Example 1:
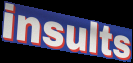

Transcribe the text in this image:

insults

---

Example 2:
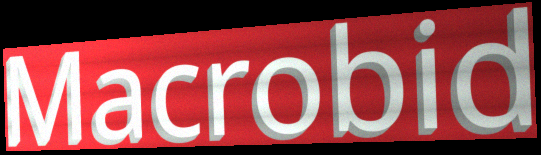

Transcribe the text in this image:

Macrobid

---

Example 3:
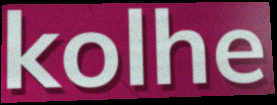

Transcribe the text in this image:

kolhe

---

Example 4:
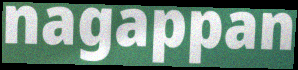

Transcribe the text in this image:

nagappan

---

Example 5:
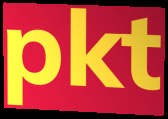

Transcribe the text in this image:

pkt